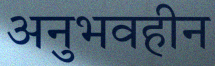
अनुभवहीन